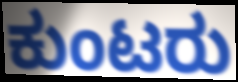
ಕುಂಟರು